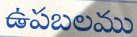
ఉపబలము